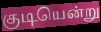
குடியென்று